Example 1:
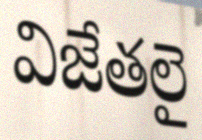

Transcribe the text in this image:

విజేతలై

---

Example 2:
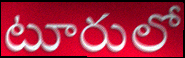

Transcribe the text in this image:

టూరులో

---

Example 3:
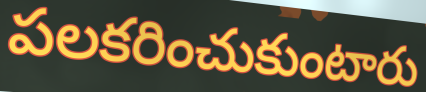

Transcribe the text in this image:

పలకరించుకుంటారు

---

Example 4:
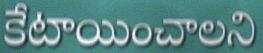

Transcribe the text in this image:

కేటాయించాలని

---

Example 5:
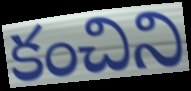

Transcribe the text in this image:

కంచిని